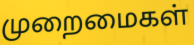
முறைமைகள்